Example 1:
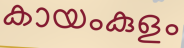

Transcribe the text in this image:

കായംകുളം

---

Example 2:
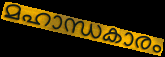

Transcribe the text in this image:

മഹാന്ധകാരം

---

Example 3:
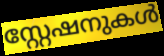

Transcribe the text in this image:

സ്റ്റേഷനുകൾ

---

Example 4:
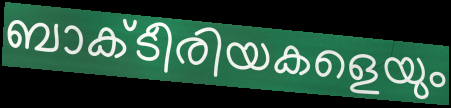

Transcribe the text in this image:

ബാക്ടീരിയകളെയും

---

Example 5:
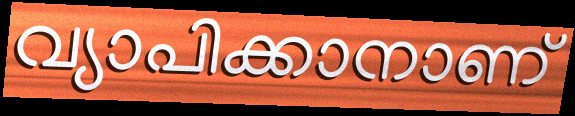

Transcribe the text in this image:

വ്യാപിക്കാനാണ്